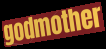
godmother